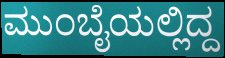
ಮುಂಬೈಯಲ್ಲಿದ್ದ